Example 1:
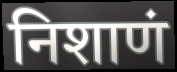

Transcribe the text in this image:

निशाणं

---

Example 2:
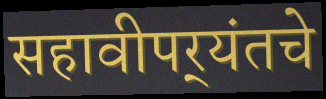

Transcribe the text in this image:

सहावीपर्यंतचे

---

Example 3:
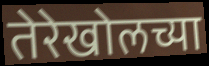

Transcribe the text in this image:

तेरेखोलच्या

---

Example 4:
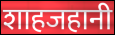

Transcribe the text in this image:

शाहजहानी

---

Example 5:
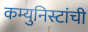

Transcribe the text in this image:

कम्युनिस्टांची